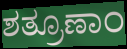
ಶತ್ರೂಣಾಂ